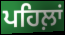
ਪਹਿਲ਼ਾਂ